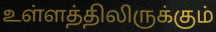
உள்ளத்திலிருக்கும்